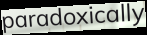
paradoxically